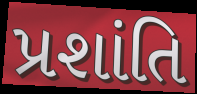
પ્રશાંતિ